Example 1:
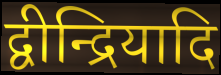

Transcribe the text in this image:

द्वीन्द्रियादि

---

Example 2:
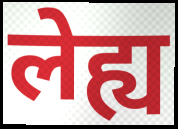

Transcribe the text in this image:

लेह्य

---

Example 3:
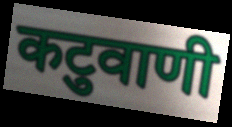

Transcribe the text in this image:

कटुवाणी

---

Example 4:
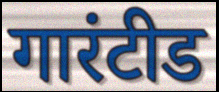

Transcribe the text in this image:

गारंटीड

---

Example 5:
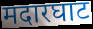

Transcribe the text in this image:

मदारघाट